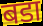
बडा